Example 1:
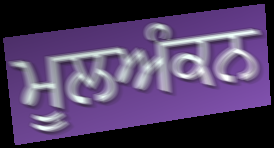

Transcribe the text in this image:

ਮੂਲਅੰਕਨ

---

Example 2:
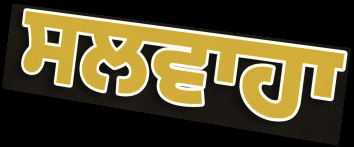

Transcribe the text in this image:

ਸਲਵਾਹਾ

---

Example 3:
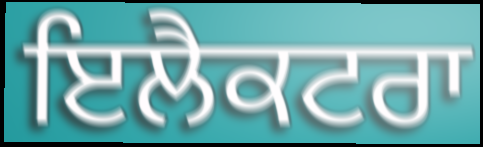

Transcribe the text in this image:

ਇਲੈਕਟਰਾ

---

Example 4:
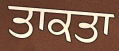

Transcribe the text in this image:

ਤਾਕਤਾ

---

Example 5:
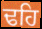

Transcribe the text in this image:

ਢਹਿ